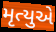
મૃત્યુએ